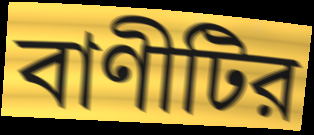
বাণীটির